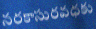
నరకాసురవధకు